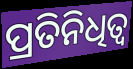
ପ୍ରତିନିଧିତ୍ୱ